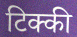
टिक्की